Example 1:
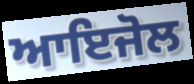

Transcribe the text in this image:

ਆਇਜੋਲ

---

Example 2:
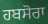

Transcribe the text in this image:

ਹਬਸੋਰਾ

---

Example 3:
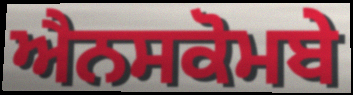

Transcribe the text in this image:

ਐਨਸਕੋਮਬੇ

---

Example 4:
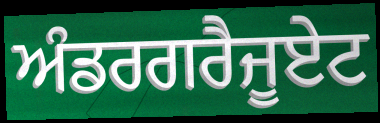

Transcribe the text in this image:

ਅੰਡਰਗਰੈਜੂਏਟ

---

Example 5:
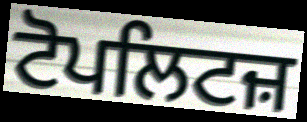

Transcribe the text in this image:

ਟੋਪਲਿਟਜ਼